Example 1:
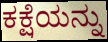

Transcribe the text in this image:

ಕಕ್ಷೆಯನ್ನು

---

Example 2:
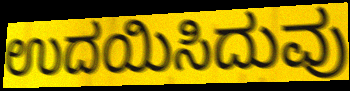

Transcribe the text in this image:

ಉದಯಿಸಿದುವು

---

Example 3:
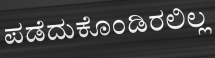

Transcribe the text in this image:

ಪಡೆದುಕೊಂಡಿರಲಿಲ್ಲ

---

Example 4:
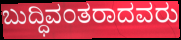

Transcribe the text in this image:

ಬುದ್ಧಿವಂತರಾದವರು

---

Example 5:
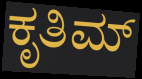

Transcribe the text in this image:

ಕೃತಿಮ್